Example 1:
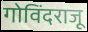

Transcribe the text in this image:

गोविंदराजू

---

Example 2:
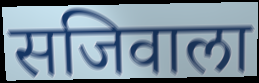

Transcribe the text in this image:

सजिवाला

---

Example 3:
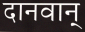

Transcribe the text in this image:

दानवान्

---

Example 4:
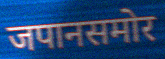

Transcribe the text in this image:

जपानसमोर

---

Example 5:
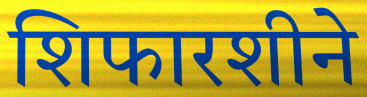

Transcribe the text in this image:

शिफारशीने